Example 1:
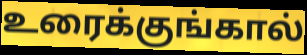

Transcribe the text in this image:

உரைக்குங்கால்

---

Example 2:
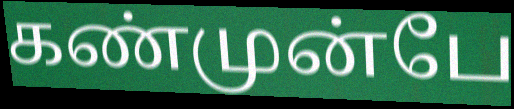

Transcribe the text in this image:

கண்முன்பே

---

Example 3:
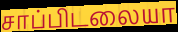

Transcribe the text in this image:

சாப்பிடலையா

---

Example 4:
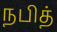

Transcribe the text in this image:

நபித்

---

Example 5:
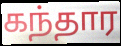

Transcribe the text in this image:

கந்தார